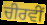
ਚੀਰਵੀਂ